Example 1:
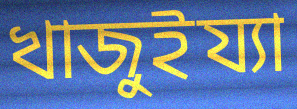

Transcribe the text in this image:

খাজুইয্যা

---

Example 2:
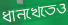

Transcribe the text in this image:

ধানখেতেও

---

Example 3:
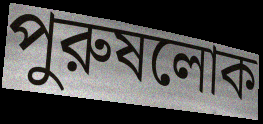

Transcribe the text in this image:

পুরুষলোক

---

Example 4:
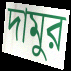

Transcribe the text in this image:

দামুর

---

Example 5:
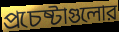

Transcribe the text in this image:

প্রচেষ্টাগুলোর